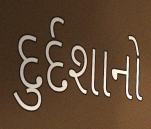
દુર્દશાનો